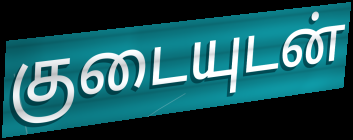
குடையுடன்